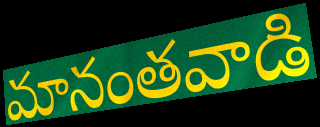
మానంతవాడి